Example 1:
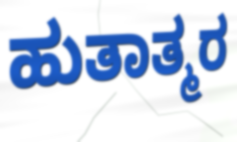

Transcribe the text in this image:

ಹುತಾತ್ಮರ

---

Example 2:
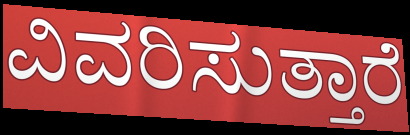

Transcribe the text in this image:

ವಿವರಿಸುತ್ತಾರೆ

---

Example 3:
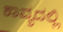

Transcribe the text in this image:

ಕಾವ್ಯದಲ್ಲಿ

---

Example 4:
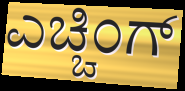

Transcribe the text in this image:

ಎಚ್ಚಿಂಗ್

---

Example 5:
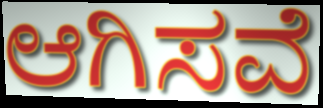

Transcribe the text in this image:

ಆಗಿಸವೆ